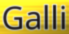
Galli